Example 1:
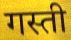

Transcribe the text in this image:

गस्ती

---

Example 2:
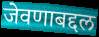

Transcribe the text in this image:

जेवणाबद्दल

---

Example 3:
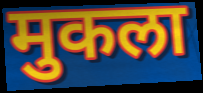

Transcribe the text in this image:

मुकला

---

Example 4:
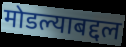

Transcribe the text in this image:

मोडल्याबद्दल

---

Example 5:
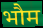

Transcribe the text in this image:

भौम